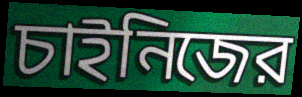
চাইনিজের